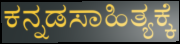
ಕನ್ನಡಸಾಹಿತ್ಯಕ್ಕೆ